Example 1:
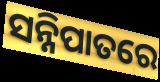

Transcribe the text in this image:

ସନ୍ନିପାତରେ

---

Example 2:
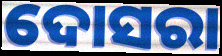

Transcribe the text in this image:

ଦୋସରା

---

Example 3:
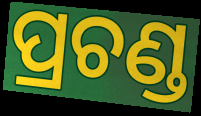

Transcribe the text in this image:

ପ୍ରଚଣ୍ଡ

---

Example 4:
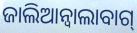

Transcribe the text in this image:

ଜାଲିଆନ୍ଵାଲାବାଗ୍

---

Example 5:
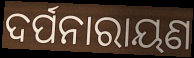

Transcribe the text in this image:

ଦର୍ପନାରାୟଣ